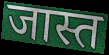
जास्त